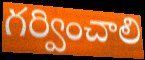
గర్వించాలి